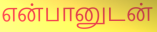
என்பானுடன்